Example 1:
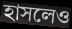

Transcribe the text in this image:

হাসলেও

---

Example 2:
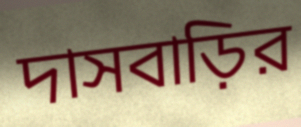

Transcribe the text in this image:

দাসবাড়ির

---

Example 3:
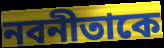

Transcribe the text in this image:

নবনীতাকে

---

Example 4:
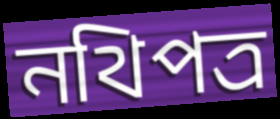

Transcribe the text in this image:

নথিপত্র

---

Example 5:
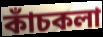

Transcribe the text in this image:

কাঁচকলা